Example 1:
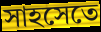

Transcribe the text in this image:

সাহসেতে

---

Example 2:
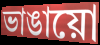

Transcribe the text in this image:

ভাঙায়ো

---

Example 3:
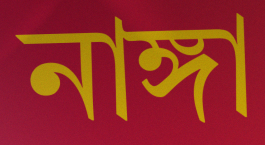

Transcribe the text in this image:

নাঙ্গা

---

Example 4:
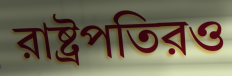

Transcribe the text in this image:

রাষ্ট্রপতিরও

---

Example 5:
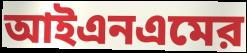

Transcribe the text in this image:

আইএনএমের